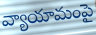
వ్యాయామంపై